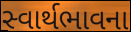
સ્વાર્થભાવના